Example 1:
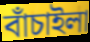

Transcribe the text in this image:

বাঁচাইলা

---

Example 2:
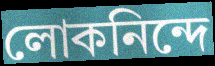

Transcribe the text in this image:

লোকনিন্দে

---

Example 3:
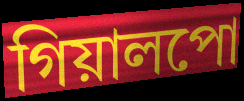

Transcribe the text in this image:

গিয়ালপো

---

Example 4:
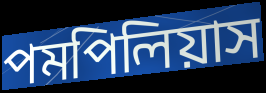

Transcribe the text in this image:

পমপিলিয়াস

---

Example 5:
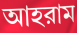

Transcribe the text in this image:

আহরাম